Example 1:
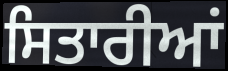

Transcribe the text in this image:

ਸਿਤਾਰੀਆਂ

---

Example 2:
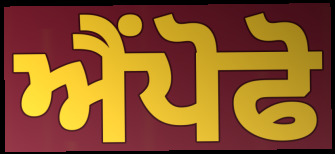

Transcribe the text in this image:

ਐਂਪੋਫੋ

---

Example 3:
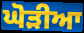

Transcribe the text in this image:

ਘੋੜੀਆ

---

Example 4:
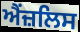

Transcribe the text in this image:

ਐਂਜ਼ਲਿਸ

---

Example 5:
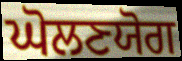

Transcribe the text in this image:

ਘੋਲਣਯੋਗ